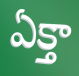
ఏక్తా